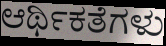
ಆರ್ಥಿಕತೆಗಳು